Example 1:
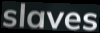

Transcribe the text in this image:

slaves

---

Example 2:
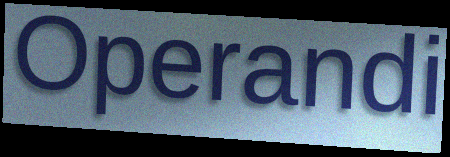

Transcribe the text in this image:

Operandi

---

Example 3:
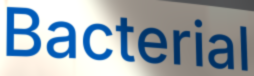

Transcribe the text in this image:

Bacterial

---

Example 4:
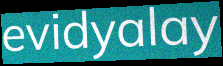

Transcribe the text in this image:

evidyalay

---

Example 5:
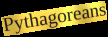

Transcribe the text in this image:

Pythagoreans